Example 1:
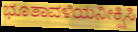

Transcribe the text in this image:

ಭೂತಾವಳಿಯನೀಕ್ಷಿಸಿ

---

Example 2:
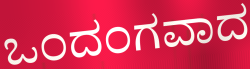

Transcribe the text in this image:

ಒಂದಂಗವಾದ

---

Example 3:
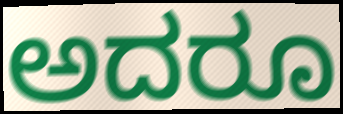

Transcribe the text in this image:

ಅದರೂ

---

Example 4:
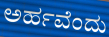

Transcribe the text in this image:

ಅರ್ಹವೆಂದು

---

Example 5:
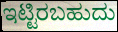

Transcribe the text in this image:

ಇಟ್ಟಿರಬಹುದು